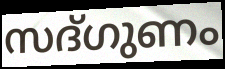
സദ്ഗുണം